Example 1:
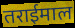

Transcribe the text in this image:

तराईमाल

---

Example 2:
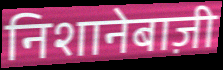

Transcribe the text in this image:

निशानेबाज़ी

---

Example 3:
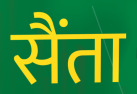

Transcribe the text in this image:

सैंता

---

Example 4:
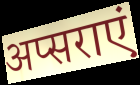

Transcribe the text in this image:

अप्सराएं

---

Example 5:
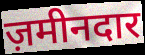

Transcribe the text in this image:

ज़मीनदार